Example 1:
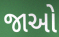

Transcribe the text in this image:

જાઓ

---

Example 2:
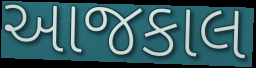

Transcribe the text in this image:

આજકાલ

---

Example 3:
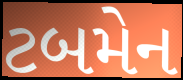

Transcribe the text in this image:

ટબમેન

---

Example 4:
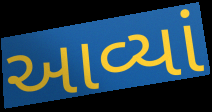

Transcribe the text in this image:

આવ્યાં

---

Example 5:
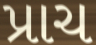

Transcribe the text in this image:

પ્રાચ